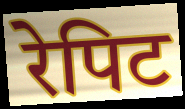
रेपिट